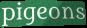
pigeons